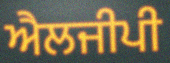
ਐਲਜੀਪੀ